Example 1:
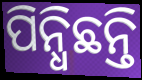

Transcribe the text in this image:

ପିନ୍ଧିଛନ୍ତି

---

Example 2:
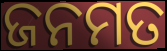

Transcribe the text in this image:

ଜନମତ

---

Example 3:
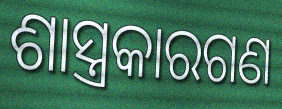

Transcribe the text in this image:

ଶାସ୍ତ୍ରକାରଗଣ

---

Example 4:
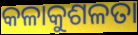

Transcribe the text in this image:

କଳାକୁଶଳତା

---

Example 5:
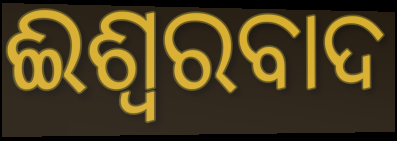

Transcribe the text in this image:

ଈଶ୍ୱରବାଦ